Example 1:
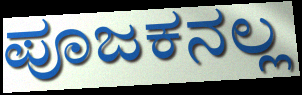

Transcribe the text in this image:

ಪೂಜಕನಲ್ಲ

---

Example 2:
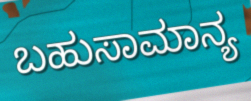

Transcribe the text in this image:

ಬಹುಸಾಮಾನ್ಯ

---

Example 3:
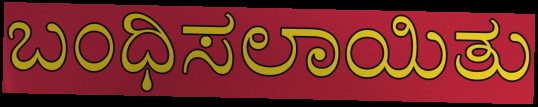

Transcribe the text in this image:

ಬಂಧಿಸಲಾಯಿತು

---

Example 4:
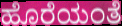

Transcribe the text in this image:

ಹೊರೆಯಂತೆ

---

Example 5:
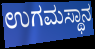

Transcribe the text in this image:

ಉಗಮಸ್ಥಾನ